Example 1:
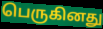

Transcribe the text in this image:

பெருகினது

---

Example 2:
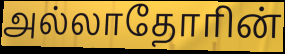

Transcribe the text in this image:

அல்லாதோரின்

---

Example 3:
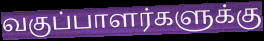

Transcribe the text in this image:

வகுப்பாளர்களுக்கு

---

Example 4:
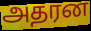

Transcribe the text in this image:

அதரன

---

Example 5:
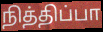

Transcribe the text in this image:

நித்திப்பா